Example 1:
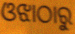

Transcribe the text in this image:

ଓଝାଠାରୁ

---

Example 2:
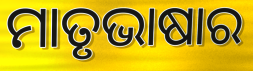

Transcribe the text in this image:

ମାତୃଭାଷାର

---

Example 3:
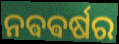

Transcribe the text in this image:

ନଵଵର୍ଷର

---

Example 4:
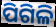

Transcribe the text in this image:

ପିଗିଳି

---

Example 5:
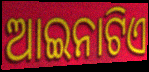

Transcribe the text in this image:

ଆଇନାଟିଏ